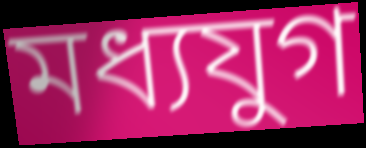
মধ্যযুগ